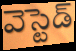
వెస్టెడ్